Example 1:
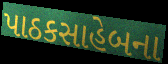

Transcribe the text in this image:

પાઠકસાહેબના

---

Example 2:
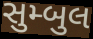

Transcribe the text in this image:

સુમ્બુલ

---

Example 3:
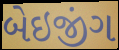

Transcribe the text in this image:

બેઇજીંગ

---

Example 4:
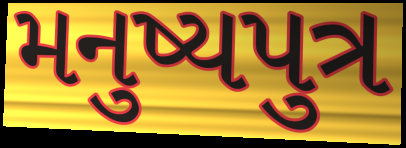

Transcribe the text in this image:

મનુષ્યપુત્ર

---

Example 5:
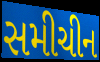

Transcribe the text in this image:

સમીચીન